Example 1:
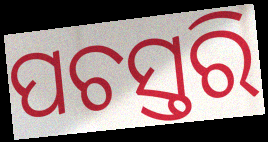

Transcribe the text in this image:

ପଚସ୍ତରି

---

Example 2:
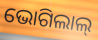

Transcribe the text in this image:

ଭୋଗିଲାଲ୍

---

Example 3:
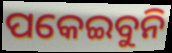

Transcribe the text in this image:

ପକେଇବୁନି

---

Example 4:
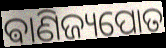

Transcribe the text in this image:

ଵାଣିଜ୍ୟପୋତ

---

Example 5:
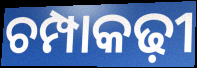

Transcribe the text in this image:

ଚମ୍ପାକଢ଼ୀ